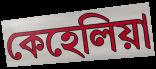
কেহেলিয়া